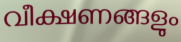
വീക്ഷണങ്ങളും